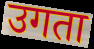
उगता